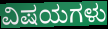
ವಿಷಯಗಳು